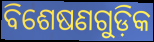
ବିଶେଷଣଗୁଡ଼ିକ